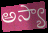
అస్యా